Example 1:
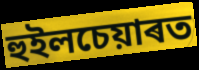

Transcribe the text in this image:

হুইলচেয়াৰত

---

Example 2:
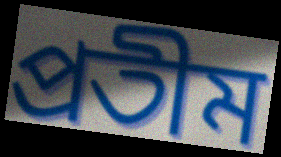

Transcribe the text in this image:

প্ৰতীম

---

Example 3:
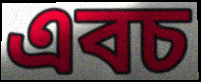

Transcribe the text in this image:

এবচ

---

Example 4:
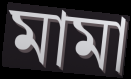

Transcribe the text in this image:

মামা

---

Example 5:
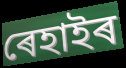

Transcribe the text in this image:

ৰেহাইৰ